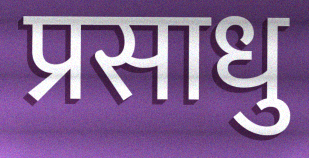
प्रसाधु